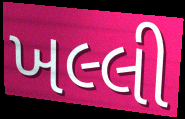
ખલ્લી